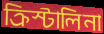
ক্রিস্টালিনা